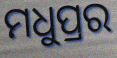
ମଧୁପ୍ରର